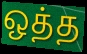
ஒத்த